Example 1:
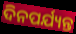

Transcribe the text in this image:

ଦିନପର୍ଯ୍ୟନ୍ତ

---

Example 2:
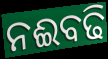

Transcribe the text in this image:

ନଈବଢି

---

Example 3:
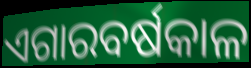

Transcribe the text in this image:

ଏଗାରବର୍ଷକାଳ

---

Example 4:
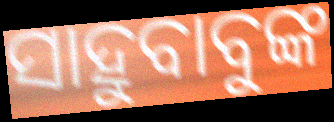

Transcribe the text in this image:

ସାହୁବାବୁଙ୍କ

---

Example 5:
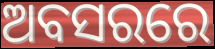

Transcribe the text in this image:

ଅବସରରେ